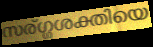
സര്ഗ്ഗശക്തിയെ